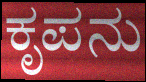
ಕೃಪನು